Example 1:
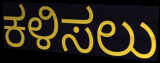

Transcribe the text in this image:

ಕಳಿಸಲು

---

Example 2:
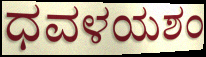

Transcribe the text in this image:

ಧವಳಯಶಂ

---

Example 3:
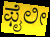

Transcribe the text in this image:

ಫೈಲೀ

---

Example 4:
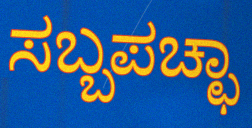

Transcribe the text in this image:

ಸಬ್ಬಪಚ್ಛಾ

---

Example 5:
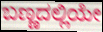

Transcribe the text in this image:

ಬಣ್ಣದಲ್ಲಿಯೇ